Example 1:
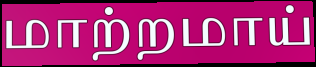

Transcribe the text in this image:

மாற்றமாய்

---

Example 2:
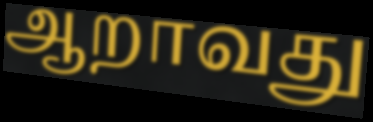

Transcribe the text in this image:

ஆறாவது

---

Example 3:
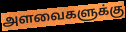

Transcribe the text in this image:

அளவைகளுக்கு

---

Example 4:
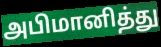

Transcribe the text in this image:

அபிமானித்து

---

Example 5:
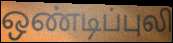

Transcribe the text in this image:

ஒண்டிப்புலி